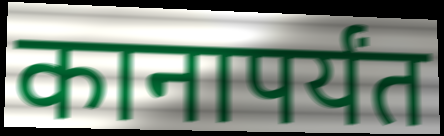
कानापर्यंत